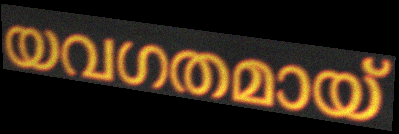
യവഗതമായ്